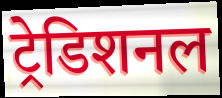
ट्रेडिशनल